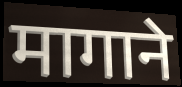
मागाने